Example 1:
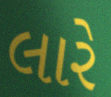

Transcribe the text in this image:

લારે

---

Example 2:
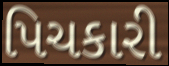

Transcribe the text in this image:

પિચકારી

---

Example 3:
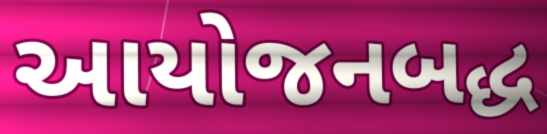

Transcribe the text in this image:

આયોજનબદ્ધ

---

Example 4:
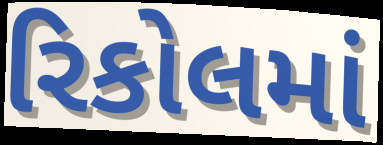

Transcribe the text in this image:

રિકોલમાં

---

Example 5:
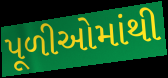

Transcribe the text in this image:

પૂળીઓમાંથી